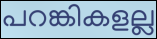
പറങ്കികളല്ല